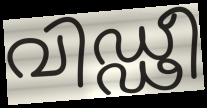
വിഡ്ഢീ